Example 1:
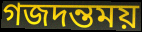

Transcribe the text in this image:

গজদন্তময়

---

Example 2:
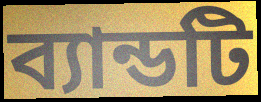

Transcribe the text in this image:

ব্যান্ডটি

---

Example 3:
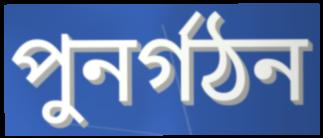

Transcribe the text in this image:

পুনর্গঠন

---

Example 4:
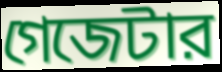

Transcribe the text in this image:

গেজেটার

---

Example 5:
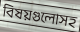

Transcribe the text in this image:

বিষয়গুলোসহ